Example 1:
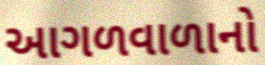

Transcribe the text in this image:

આગળવાળાનો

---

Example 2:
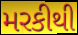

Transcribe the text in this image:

મરકીથી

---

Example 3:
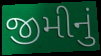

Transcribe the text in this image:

જીમીનું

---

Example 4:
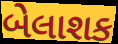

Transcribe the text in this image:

બેલાશક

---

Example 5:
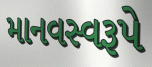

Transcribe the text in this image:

માનવસ્વરૂપે